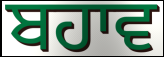
ਬਹਾਵ